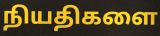
நியதிகளை